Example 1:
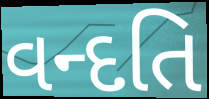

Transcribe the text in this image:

વન્દતિ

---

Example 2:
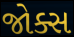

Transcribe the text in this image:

જોક્સ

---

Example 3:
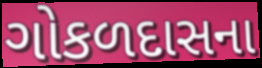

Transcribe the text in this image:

ગોકળદાસના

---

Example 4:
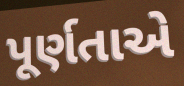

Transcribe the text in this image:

પૂર્ણતાએ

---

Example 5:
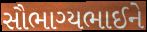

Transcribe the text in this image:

સૌભાગ્યભાઈને